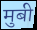
मुबी